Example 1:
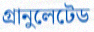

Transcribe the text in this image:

গ্রানুলেটেড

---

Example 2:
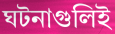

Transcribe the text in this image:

ঘটনাগুলিই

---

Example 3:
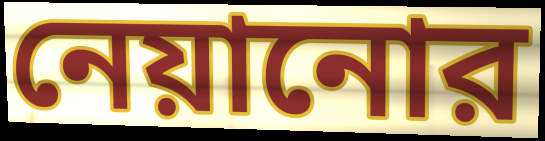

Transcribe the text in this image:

নেয়ানোর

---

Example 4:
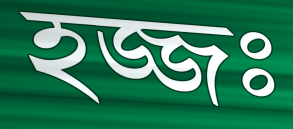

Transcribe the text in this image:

হজ্জঃ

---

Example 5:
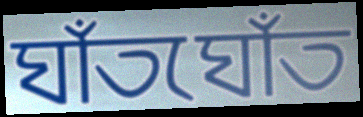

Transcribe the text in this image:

ঘাঁতঘোঁত